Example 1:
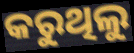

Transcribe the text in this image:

କରୁଥିଲୁ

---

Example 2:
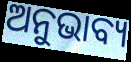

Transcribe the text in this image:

ଅନୁଭାବ୍ୟ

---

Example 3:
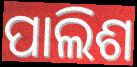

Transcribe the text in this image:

ପାଲିଶ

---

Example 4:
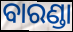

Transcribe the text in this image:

ବାରଣ୍ଡା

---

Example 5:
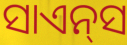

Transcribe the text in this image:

ସାଏନ୍‌ସ